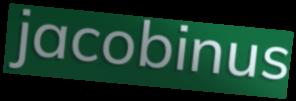
jacobinus